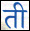
ती